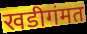
खडीगंमत